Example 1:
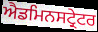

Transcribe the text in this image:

ਐਡਮਿਨਸਟ੍ਰੇਟਰ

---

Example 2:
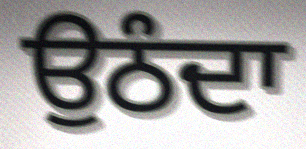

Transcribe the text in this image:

ਉਠੰਦਾ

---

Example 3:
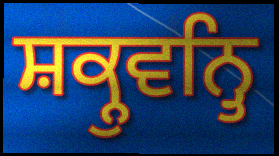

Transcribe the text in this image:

ਸ਼ਕ੍ਨੁਵਨ੍ਤਿ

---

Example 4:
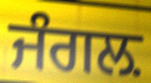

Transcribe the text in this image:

ਜੰਗਲ਼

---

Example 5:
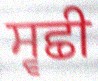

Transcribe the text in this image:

ਸ੍ਵਛੀ